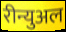
रीन्युअल